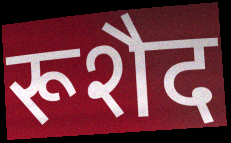
रूशैद